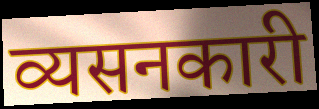
व्यसनकारी